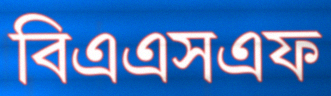
বিএএসএফ